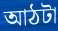
আঠটা